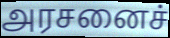
அரசனைச்